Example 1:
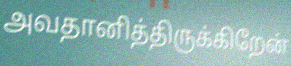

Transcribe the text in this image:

அவதானித்திருக்கிறேன்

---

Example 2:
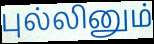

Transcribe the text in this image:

புல்லினும்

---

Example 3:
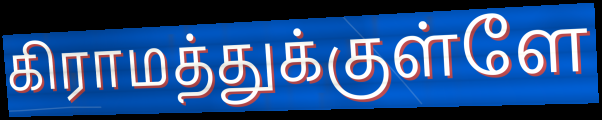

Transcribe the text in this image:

கிராமத்துக்குள்ளே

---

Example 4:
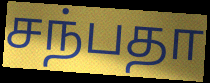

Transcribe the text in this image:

சந்பதா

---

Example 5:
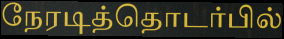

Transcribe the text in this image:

நேரடித்தொடர்பில்